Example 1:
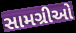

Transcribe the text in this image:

સામગ્રીઓ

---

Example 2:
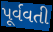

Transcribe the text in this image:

પૂર્વવતી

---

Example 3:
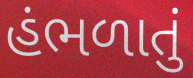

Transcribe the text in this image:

હંભળાતું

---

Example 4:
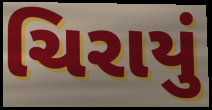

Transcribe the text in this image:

ચિરાયું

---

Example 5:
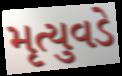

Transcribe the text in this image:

મૃત્યુવડે